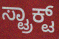
ಸ್ಟ್ರಾಕ್ಟ್